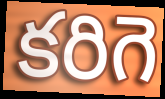
కరిగె